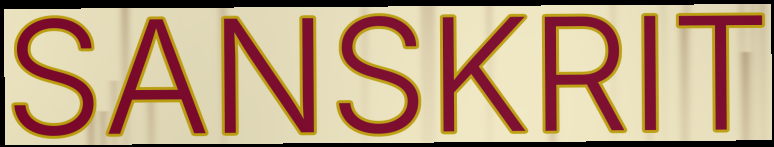
SANSKRIT